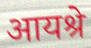
आयश्रे